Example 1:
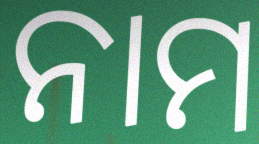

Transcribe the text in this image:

ନାମ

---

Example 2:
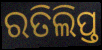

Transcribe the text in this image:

ରତିଲିପ୍ତ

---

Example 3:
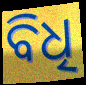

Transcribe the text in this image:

ବିଧି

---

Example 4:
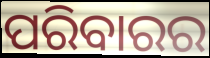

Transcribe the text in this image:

ପରିବାରର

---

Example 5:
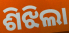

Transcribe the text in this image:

ଶିଝିଲା